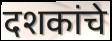
दशकांचे